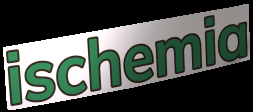
ischemia